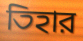
তিহার